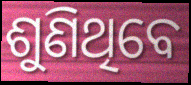
ଶୁଣିଥିବେ